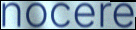
nocere